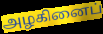
அழகினைப்